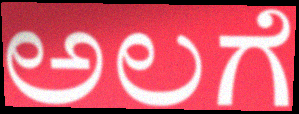
ಅಲಗೆ